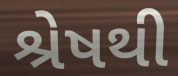
શ્રેષથી